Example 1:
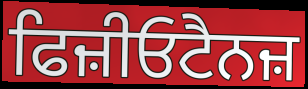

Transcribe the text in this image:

ਫਿਜ਼ੀਓਟੈਨਜ਼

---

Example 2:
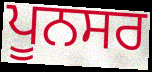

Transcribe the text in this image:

ਪੂਨਸਰ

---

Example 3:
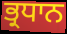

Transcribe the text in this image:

ਭ੍ਰਧਾਨ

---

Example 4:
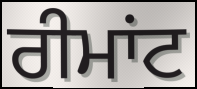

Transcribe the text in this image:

ਰੀਮਾਂਟ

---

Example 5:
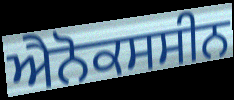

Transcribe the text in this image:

ਐਨੋਕਸਸੀਨ